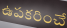
ఉపకరించే